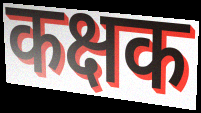
कक्षक